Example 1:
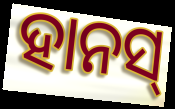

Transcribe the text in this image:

ହାନସ୍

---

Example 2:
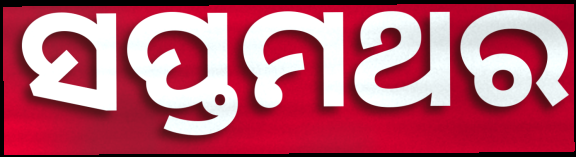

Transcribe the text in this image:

ସପ୍ତମଥର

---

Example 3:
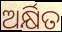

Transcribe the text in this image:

ଅର୍କ୍ଷିତ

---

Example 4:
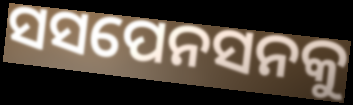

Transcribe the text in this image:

ସସପେନସନକୁ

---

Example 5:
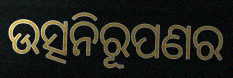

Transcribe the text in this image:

ଉତ୍ସନିରୂପଣର